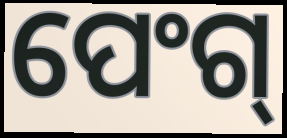
ପେଂଗ୍